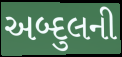
અબ્દુલની